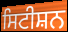
ਸਿਟੀਸ਼ਨ